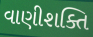
વાણીશક્તિ